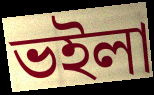
ভইলা